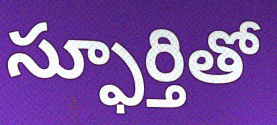
స్ఫూర్తితో